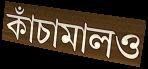
কাঁচামালও